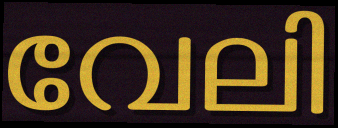
വേലി